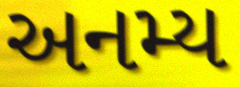
અનમ્ય